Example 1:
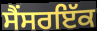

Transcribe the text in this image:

ਸੈਂਸਰਇੱਕ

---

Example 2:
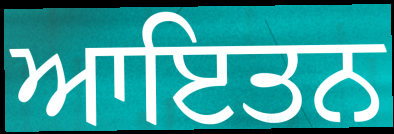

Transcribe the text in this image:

ਆਇਤਨ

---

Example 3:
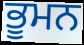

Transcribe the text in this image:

ਭੂਮਨ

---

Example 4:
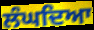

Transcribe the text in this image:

ਲੰਘਦਿਆ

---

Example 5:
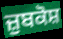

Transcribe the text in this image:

ਜ਼ੁਬਕੋਸ਼